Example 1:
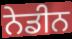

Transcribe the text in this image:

ਨੇਡੀਨ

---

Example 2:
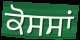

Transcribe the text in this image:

ਕੋਸਸਾਂ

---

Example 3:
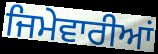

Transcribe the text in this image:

ਜਿਮੇਵਾਰੀਆਂ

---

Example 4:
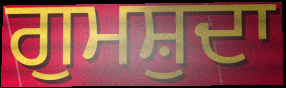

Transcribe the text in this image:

ਗੁਮਸ਼ੁਦਾ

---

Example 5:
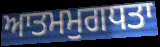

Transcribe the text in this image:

ਆਤਮਮੁਗਧਤਾ